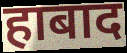
हाबाद